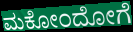
ಮಕೋಂದೋಗೆ